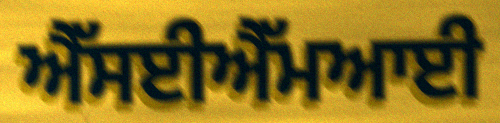
ਐੱਸਈਐੱਮਆਈ